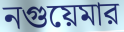
নগুয়েমার